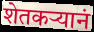
शेतकऱ्यानं